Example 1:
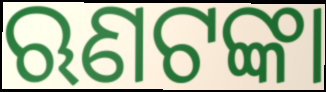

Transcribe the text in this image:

ଋଣଟଙ୍କା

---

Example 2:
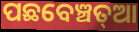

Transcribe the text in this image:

ପଛବେଞ୍ଚତ୍ଆ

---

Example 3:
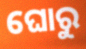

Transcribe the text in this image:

ଘୋରୁ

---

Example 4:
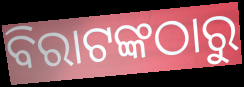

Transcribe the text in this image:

ବିରାଟଙ୍କଠାରୁ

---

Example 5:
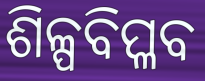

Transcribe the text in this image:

ଶିଳ୍ପବିପ୍ଳବ